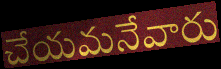
చేయమనేవారు